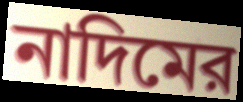
নাদিমের